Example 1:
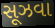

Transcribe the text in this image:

સૂઝવા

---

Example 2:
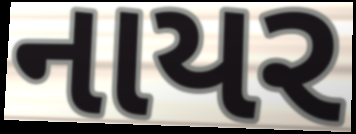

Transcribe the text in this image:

નાયર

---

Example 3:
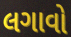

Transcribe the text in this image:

લગાવો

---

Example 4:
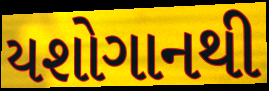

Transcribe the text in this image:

યશોગાનથી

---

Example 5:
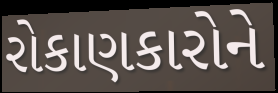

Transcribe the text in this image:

રોકાણકારોને